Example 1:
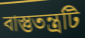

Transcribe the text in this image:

বাস্তুতন্ত্রটি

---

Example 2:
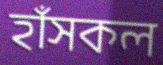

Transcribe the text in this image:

হাঁসকল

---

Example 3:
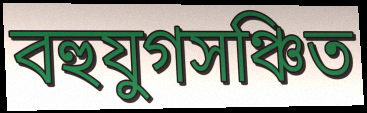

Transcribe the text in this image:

বহুযুগসঞ্চিত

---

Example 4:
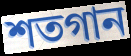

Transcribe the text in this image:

শতগান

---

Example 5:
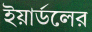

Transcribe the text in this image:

ইয়ার্ডলের